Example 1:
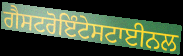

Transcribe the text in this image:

ਗੈਸਟਰੋਇੰਟੇਸਟਾਈਨਲ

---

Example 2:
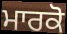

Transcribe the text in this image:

ਮਾਰਕੋ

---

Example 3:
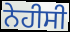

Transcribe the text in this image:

ਨੇਹੀਸੀ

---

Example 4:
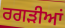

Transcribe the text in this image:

ਰਗੜੀਆਂ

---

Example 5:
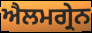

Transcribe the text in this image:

ਐਲਮਗ੍ਰੇਨ